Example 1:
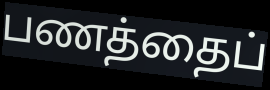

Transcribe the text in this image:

பணத்தைப்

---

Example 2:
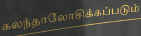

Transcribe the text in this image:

கலந்தாலோசிக்கப்படும்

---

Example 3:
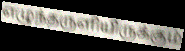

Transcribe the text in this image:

எழுந்தருளியிருக்கும்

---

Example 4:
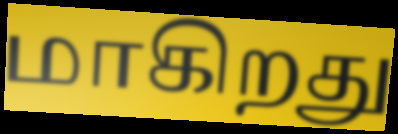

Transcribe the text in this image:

மாகிறது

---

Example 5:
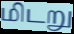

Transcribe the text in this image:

மிடறு